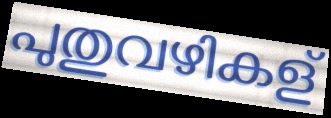
പുതുവഴികള്